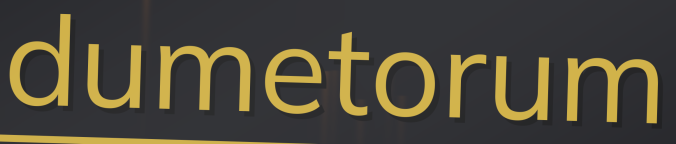
dumetorum